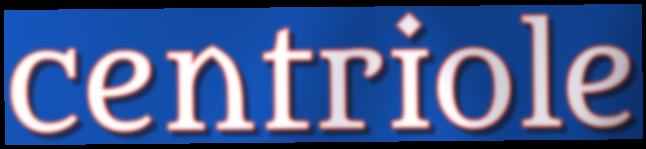
centriole